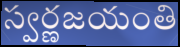
స్వర్ణజయంతి